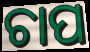
ଚାପ